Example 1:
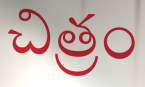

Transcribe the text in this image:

చిత్రం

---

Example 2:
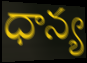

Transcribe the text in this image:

ధాన్య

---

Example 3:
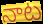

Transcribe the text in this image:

నాట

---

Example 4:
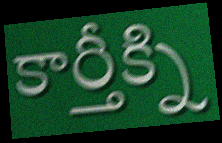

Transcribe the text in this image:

కార్తీక్ని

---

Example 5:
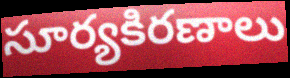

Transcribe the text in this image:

సూర్యకిరణాలు